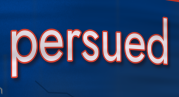
persued